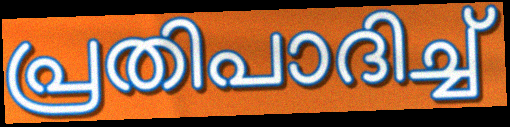
പ്രതിപാദിച്ച്